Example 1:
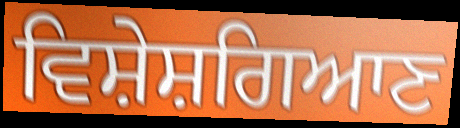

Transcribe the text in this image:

ਵਿਸ਼ੇਸ਼ਗਿਆਣ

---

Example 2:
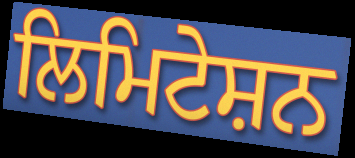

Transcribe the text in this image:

ਲਿਮਿਟੇਸ਼ਨ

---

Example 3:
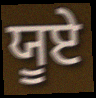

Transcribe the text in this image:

ਯੂਏ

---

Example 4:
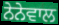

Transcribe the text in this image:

ਨੇਨੇਵਾਲ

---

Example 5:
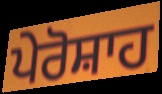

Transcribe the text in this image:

ਪੇਰੋਸ਼ਾਹ